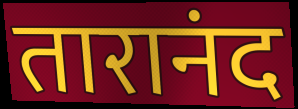
तारानंद